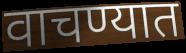
वाचण्यात